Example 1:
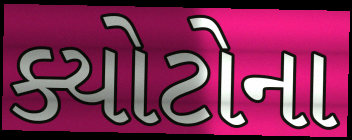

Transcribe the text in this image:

ક્યોટોના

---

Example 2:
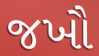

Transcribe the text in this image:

જખૌ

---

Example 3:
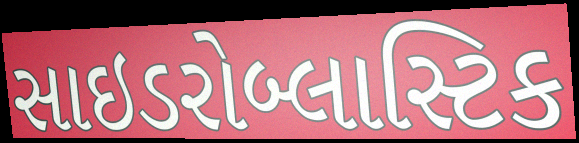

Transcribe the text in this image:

સાઇડરોબ્લાસ્ટિક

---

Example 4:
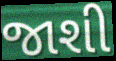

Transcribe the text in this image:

જાશી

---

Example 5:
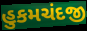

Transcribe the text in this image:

હુકમચંદજી